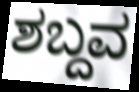
ಶಬ್ದವ